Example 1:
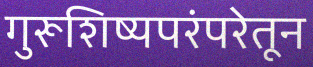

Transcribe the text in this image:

गुरूशिष्यपरंपरेतून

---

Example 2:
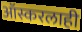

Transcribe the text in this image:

ऑस्करलाही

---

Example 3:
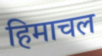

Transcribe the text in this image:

हिमाचल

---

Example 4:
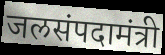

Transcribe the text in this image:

जलसंपदामंत्री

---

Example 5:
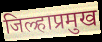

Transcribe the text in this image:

जिल्हाप्रमुख